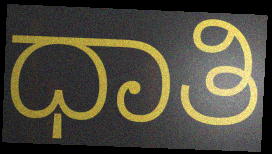
ಧಾತಿ